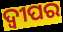
ଦ୍ଵୀପର